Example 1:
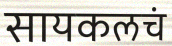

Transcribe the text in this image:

सायकलचं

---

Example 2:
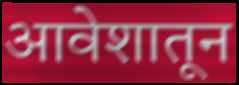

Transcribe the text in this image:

आवेशातून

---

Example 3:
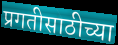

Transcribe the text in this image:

प्रगतीसाठीच्या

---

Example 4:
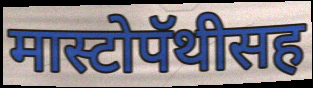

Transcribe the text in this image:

मास्टोपॅथीसह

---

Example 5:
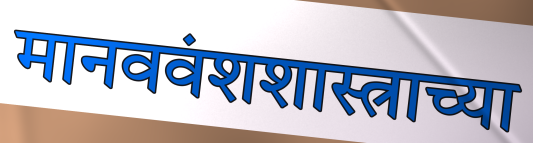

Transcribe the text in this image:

मानववंशशास्त्राच्या